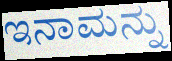
ಇನಾಮನ್ನು